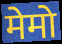
मेमो